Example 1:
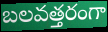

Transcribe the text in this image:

బలవత్తరంగా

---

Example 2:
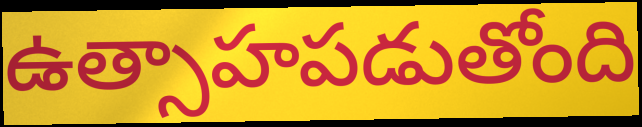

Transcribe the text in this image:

ఉత్సాహపడుతోంది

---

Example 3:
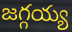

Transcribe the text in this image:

జగ్గయ్య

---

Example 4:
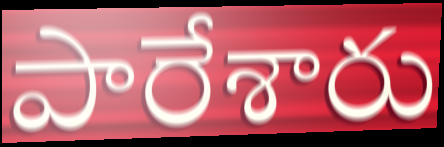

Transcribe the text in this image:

పారేశారు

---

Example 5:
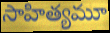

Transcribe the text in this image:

సాహిత్యమూ